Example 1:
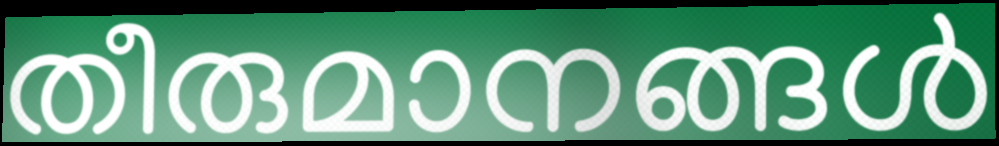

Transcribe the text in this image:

തീരുമാനങ്ങൾ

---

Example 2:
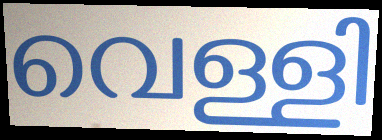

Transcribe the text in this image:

വെള്ളി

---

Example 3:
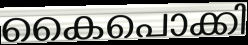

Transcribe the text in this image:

കൈപൊക്കി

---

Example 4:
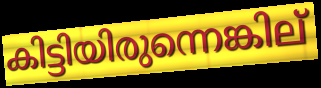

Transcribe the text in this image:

കിട്ടിയിരുന്നെങ്കില്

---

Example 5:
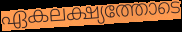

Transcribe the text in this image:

ഏകലക്ഷ്യത്തോടെ